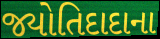
જ્યોતિદાદાના